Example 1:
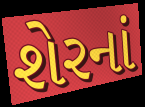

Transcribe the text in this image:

શેરનાં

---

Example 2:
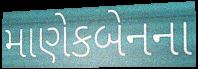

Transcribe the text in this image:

માણેકબેનના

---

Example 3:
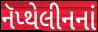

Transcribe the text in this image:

નૅપ્થેલીનનાં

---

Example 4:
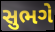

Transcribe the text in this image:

સુભગે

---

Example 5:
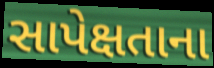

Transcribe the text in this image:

સાપેક્ષતાના